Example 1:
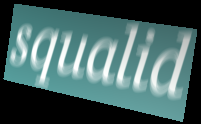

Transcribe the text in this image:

squalid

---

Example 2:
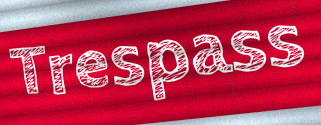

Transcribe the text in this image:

Trespass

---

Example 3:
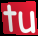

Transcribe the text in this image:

tu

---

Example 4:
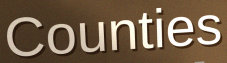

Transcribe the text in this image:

Counties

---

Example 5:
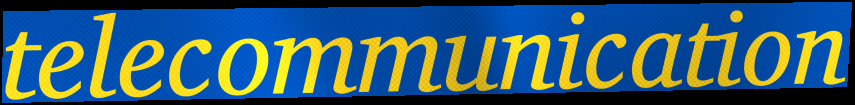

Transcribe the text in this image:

telecommunication